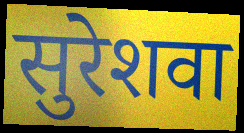
सुरेशवा